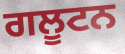
ਗਲੂਟਨ